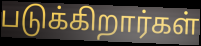
படுக்கிறார்கள்